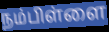
நம்பிள்ளை